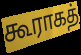
கூராகத்